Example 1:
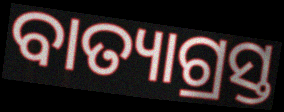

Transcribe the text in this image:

ବାତ୍ୟାଗ୍ରସ୍ତ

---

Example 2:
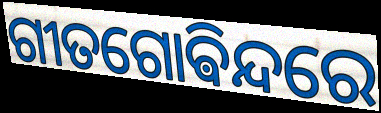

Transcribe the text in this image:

ଗୀତଗୋଵିନ୍ଦରେ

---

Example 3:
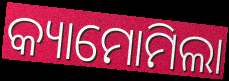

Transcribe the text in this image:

କ୍ୟାମୋମିଲା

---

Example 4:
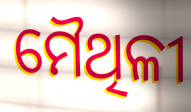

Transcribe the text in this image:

ମୈଥିଳୀ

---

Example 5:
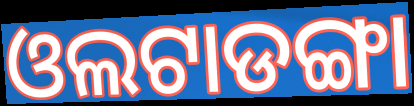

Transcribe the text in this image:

ଓଲଟାଡଙ୍ଗା